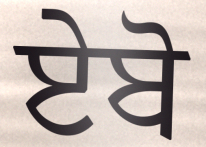
ਏਬੋ